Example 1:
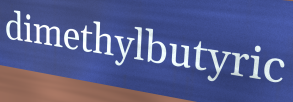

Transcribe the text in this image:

dimethylbutyric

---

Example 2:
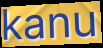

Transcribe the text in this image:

kanu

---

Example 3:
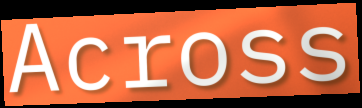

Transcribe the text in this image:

Across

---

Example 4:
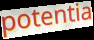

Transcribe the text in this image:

potentia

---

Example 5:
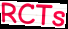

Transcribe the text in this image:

RCTs